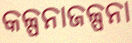
କଳ୍ପନାଜଳ୍ପନା